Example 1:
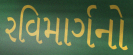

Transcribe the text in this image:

રવિમાર્ગનો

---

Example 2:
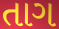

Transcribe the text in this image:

તાગ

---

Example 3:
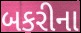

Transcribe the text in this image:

બકરીના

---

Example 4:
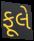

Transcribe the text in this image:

ફૂલે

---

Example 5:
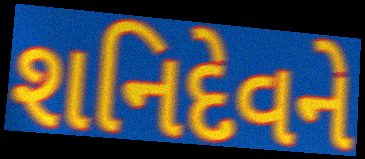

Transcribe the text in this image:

શનિદેવને